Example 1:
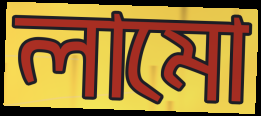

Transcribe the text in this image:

লামো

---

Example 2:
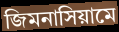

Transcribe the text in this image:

জিমনাসিয়ামে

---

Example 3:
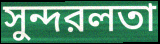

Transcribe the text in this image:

সুন্দরলতা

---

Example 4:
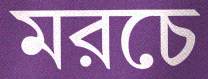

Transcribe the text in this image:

মরচে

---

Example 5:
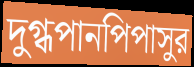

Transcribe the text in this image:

দুগ্ধপানপিপাসুর